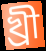
খ্ৰী